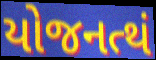
યોજનત્થં